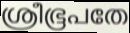
ശ്രീഭൂപതേ